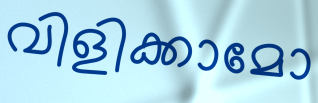
വിളിക്കാമോ